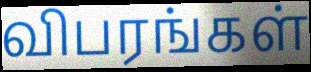
விபரங்கள்